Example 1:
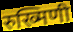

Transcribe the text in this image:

रुख्मिणी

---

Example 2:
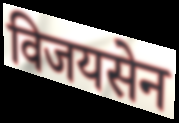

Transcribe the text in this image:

विजयसेन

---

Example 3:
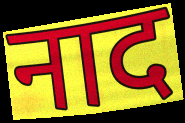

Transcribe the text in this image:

नाद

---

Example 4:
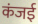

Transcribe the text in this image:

कंजई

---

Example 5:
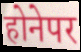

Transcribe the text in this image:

होनेपर